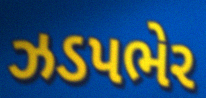
ઝડપભેર